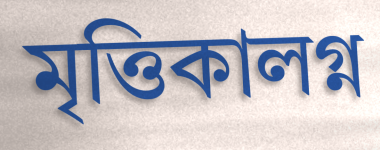
মৃত্তিকালগ্ন